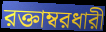
রক্তাম্বরধারী